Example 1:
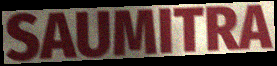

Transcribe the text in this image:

SAUMITRA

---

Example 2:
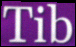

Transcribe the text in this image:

Tib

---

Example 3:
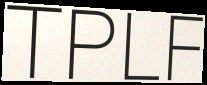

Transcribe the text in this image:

TPLF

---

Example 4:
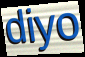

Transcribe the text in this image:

diyo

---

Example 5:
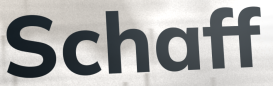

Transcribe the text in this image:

Schaff